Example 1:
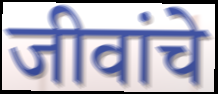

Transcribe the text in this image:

जीवांचे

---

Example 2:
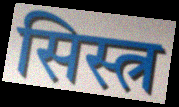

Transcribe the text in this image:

सिस्त्र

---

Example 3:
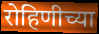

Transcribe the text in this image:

रोहिणीच्या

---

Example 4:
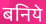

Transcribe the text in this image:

बनिये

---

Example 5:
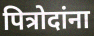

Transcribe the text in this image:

पित्रोदांना